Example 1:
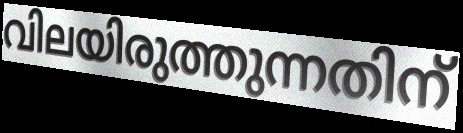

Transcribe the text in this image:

വിലയിരുത്തുന്നതിന്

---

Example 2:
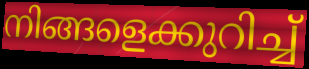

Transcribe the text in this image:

നിങ്ങളെക്കുറിച്ച്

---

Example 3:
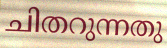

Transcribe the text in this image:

ചിതറുന്നതു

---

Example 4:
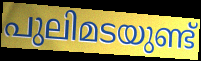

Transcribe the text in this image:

പുലിമടയുണ്ട്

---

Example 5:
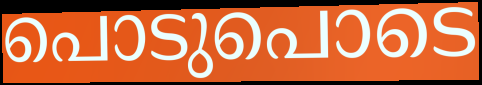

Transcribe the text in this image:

പൊടുപൊടെ